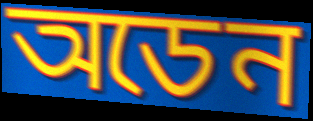
অডেন